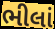
ભીલાં